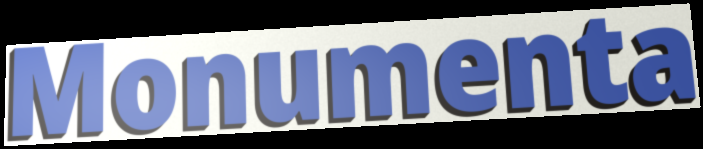
Monumenta